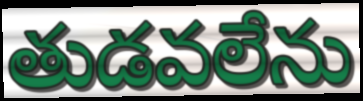
తుడవలేను